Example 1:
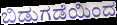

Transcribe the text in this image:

ಬಿಡುಗಡೆಯಿಂದ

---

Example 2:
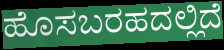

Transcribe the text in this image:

ಹೊಸಬರಹದಲ್ಲಿದೆ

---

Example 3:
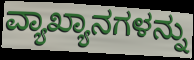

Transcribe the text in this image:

ವ್ಯಾಖ್ಯಾನಗಳನ್ನು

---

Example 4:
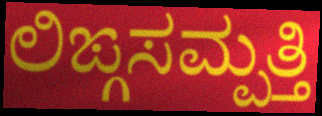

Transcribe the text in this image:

ಲಿಙ್ಗಸಮ್ಪತ್ತಿ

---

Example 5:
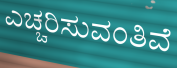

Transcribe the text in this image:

ಎಚ್ಚರಿಸುವಂತಿವೆ